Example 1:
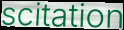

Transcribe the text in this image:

scitation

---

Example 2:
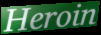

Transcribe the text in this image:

Heroin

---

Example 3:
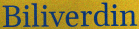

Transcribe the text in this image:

Biliverdin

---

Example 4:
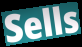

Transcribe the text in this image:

Sells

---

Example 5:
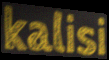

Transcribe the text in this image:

kalisi